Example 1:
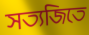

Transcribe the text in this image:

সত্যজিতে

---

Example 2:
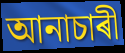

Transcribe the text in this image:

আনাচাৰী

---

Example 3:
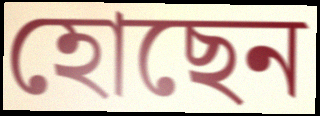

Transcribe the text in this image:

হোছেন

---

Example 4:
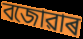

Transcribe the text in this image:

বজোৱাৰ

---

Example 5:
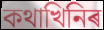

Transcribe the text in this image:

কথাখিনিৰ